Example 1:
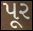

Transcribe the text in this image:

પૂર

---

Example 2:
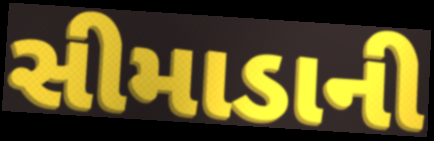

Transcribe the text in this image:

સીમાડાની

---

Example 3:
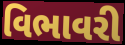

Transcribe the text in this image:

વિભાવરી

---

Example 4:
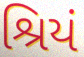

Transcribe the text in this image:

શ્રિયં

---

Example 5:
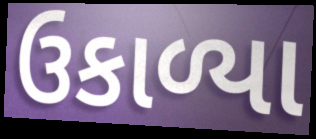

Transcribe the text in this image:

ઉકાળ્યા